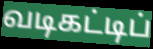
வடிகட்டிப்